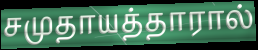
சமுதாயத்தாரால்